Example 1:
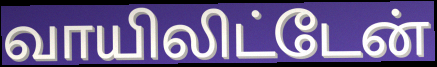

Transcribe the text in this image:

வாயிலிட்டேன்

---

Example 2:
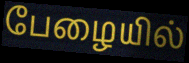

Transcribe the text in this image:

பேழையில்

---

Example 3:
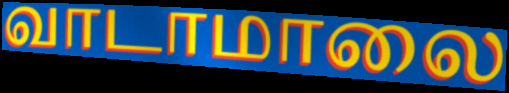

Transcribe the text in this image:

வாடாமாலை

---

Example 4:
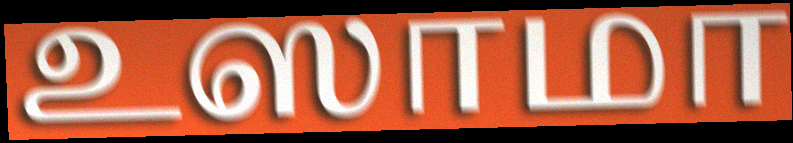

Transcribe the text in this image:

உஸாமா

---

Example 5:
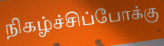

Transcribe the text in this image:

நிகழ்ச்சிப்போக்கு